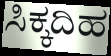
ಸಿಕ್ಕದಿಹ